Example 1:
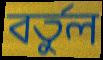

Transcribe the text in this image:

বর্তুল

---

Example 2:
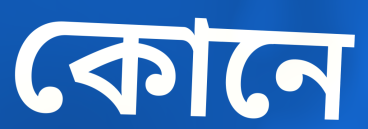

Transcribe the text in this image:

কোনে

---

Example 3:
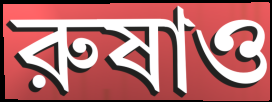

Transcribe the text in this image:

রুষাও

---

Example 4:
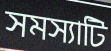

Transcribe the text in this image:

সমস্যাটি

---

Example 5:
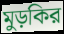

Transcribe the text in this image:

মুড়কির